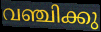
വഞ്ചിക്കു